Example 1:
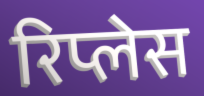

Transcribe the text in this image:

रिप्लेस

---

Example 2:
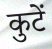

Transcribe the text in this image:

कुटें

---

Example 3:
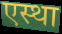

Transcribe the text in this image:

एस्था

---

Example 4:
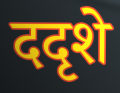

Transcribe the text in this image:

ददृशे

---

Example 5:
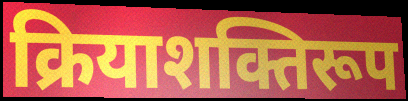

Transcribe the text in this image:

क्रियाशक्तिरूप